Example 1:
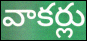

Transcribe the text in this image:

వాకర్లు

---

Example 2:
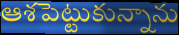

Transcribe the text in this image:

ఆశపెట్టుకున్నాను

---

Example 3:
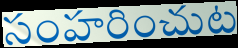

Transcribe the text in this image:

సంహరించుట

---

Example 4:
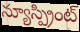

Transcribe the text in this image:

న్యూస్ప్రింట్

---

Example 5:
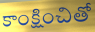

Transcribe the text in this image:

కాంక్షించితో